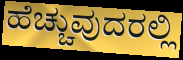
ಹೆಚ್ಚುವುದರಲ್ಲಿ